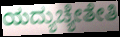
ಯದ್ಯುಚ್ಯೇತೇತಿ